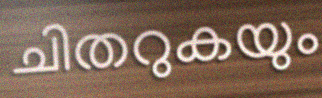
ചിതറുകയും